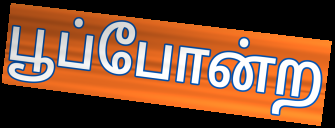
பூப்போன்ற